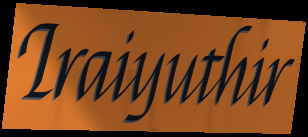
Iraiyuthir